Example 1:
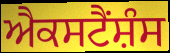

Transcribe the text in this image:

ਐਕਸਟੈਂਸ਼ੰਸ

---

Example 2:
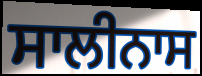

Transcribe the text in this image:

ਸਾਲੀਨਾਸ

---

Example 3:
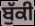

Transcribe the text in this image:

ਬੁੱਕੀ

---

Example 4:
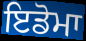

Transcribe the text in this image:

ਇਡੋਮਾ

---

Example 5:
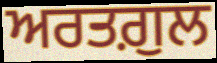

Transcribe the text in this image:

ਅਰਤਗ਼ੁਲ